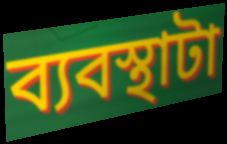
ব্যবস্থাটা